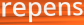
repens